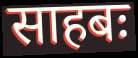
साहबः